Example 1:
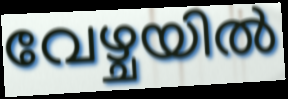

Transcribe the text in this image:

വേഴ്ചയിൽ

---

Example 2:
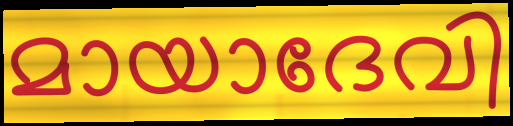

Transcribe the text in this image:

മായാദേവി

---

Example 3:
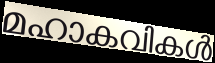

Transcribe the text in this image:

മഹാകവികൾ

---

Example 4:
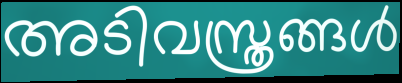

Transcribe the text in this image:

അടിവസ്ത്രങ്ങൾ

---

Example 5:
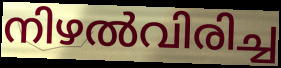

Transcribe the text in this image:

നിഴൽവിരിച്ച